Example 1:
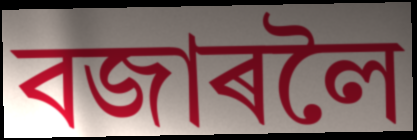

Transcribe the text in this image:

বজাৰলৈ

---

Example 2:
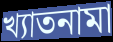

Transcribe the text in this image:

খ্যাতনামা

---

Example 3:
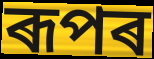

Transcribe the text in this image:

ৰূপৰ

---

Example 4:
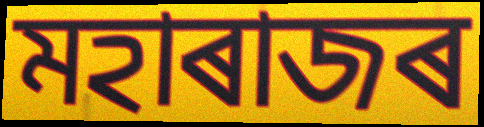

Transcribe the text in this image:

মহাৰাজৰ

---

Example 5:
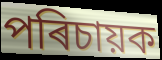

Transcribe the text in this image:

পৰিচায়ক